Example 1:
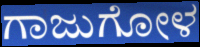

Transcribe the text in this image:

ಗಾಜುಗೋಳ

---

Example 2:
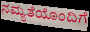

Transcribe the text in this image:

ನಮ್ಯತೆಯೊಂದಿಗೆ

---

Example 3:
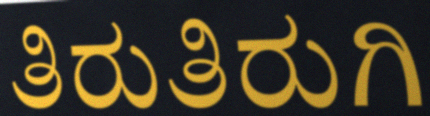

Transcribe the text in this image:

ತಿರುತಿರುಗಿ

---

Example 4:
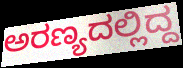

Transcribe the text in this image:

ಅರಣ್ಯದಲ್ಲಿದ್ದ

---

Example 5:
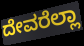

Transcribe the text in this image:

ದೇವರೆಲ್ಲಾ